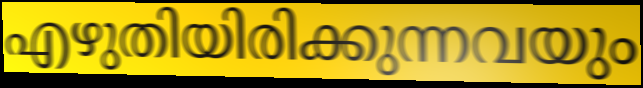
എഴുതിയിരിക്കുന്നവയും